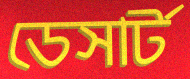
ডেসার্ট